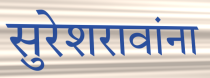
सुरेशरावांना